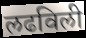
लढविली